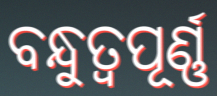
ବନ୍ଧୁତ୍ଵପୂର୍ଣ୍ଣ